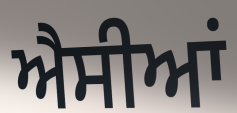
ਐਸੀਆਂ